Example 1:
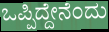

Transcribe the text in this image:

ಒಪ್ಪಿದ್ದೇನೆಂದು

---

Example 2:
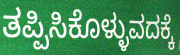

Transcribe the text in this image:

ತಪ್ಪಿಸಿಕೊಳ್ಳುವದಕ್ಕೆ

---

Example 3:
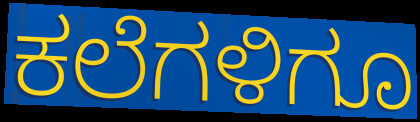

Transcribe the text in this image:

ಕಲೆಗಳಿಗೂ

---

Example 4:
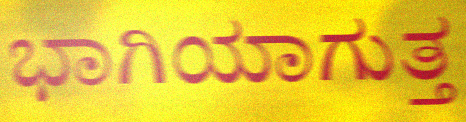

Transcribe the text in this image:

ಭಾಗಿಯಾಗುತ್ತ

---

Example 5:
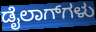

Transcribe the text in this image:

ಡೈಲಾಗ್‌ಗಳು